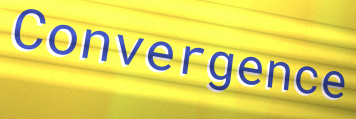
Convergence